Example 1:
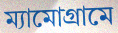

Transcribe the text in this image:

ম্যামোগ্রামে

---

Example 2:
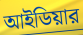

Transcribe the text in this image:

আইডিয়ার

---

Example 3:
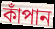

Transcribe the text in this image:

কাঁপান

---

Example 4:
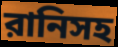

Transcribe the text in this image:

রানিসহ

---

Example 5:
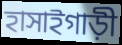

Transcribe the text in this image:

হাসাইগাড়ী